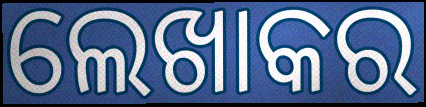
ଲେଖାକର